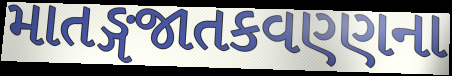
માતઙ્ગજાતકવણ્ણના